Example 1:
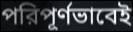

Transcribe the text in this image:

পরিপূর্ণভাবেই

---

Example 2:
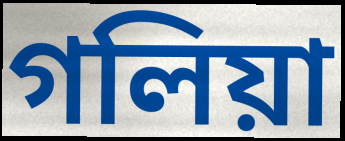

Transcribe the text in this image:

গলিয়া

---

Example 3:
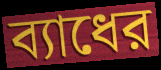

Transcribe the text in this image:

ব্যাধের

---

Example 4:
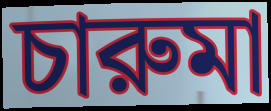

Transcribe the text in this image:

চারুমা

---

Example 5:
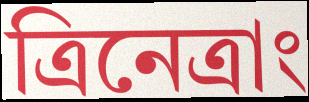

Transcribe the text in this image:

ত্রিনেত্রাং